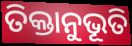
ତିକ୍ତାନୁଭୂତି